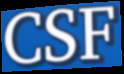
CSF